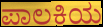
ಪಾಲಕಿಯ